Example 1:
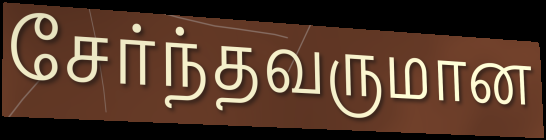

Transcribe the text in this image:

சேர்ந்தவருமான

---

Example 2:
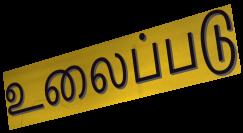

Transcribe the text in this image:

உலைப்படு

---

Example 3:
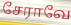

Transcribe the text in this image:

சேராவே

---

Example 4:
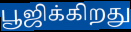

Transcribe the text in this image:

பூஜிக்கிறது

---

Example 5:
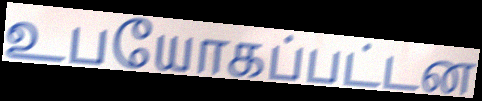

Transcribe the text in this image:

உபயோகப்பட்டன